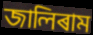
জালিৰাম